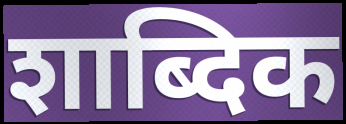
शाब्दिक